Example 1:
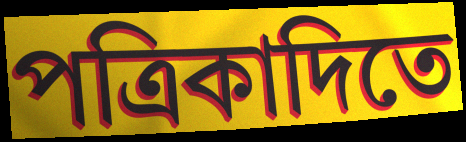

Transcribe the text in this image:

পত্রিকাদিতে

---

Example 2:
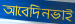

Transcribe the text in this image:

আবেদিনভাই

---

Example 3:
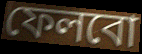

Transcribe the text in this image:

ফেলবো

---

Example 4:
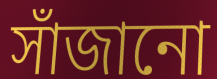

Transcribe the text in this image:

সাঁজানো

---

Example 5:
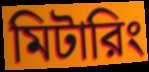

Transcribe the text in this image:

মিটারিং